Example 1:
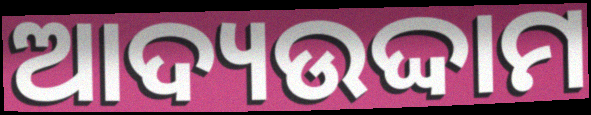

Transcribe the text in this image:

ଆଦ୍ୟଉଦ୍ଦାମ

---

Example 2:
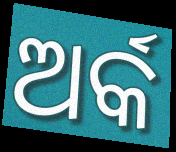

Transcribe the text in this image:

ଅର୍କ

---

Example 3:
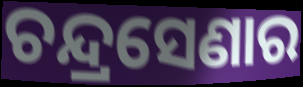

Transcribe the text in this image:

ଚନ୍ଦ୍ରସେଣାର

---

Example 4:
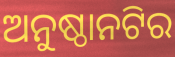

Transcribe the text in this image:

ଅନୁଷ୍ଠାନଟିର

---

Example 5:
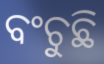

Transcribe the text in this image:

ବଂଚୁଛି